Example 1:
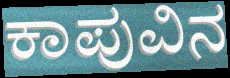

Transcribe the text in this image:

ಕಾಪುವಿನ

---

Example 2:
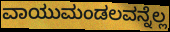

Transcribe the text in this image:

ವಾಯುಮಂಡಲವನ್ನೆಲ್ಲ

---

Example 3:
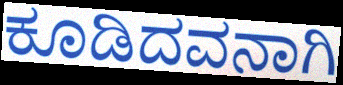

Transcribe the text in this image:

ಕೂಡಿದವನಾಗಿ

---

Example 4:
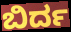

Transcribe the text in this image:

ಬಿರ್ದ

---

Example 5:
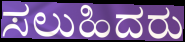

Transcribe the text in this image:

ಸಲುಹಿದರು